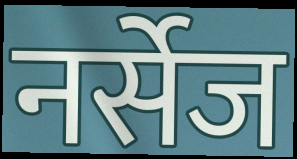
नर्सेज